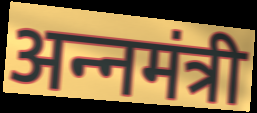
अन्नमंत्री